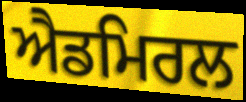
ਐਡਮਿਰਲ